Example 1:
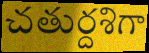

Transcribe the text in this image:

చతుర్దశిగా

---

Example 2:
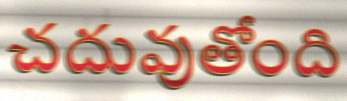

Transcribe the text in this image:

చదువుతోంది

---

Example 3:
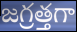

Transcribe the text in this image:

జగ్రత్తగా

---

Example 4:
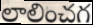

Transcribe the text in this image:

లాలించగ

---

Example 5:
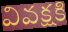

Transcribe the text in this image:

వివక్షకి